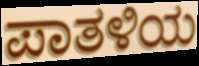
ಪಾತಳಿಯ